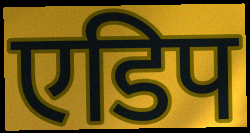
एडिप